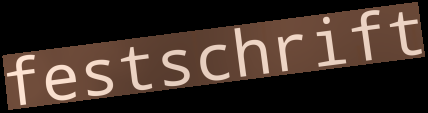
festschrift